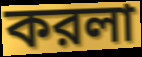
করলা